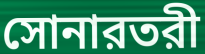
সোনারতরী